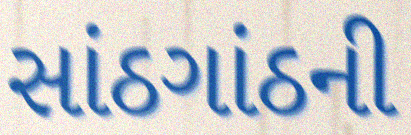
સાંઠગાંઠની